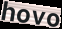
hovo